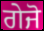
ਗੇਜੋ